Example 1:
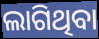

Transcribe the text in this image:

ଲାଗିଥିବା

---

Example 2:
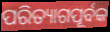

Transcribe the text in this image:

ପରିତ୍ୟାଗପୂର୍ବକ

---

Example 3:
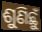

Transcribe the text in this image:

ଶୁଣିଛୁଁ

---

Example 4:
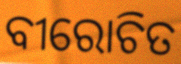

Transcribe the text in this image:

ବୀରୋଚିତ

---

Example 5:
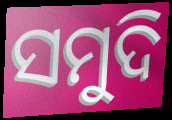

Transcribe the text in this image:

ସମୁଦି